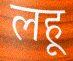
लहू